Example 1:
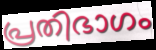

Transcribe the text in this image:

പ്രതിഭാഗം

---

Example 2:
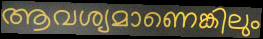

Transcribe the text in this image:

ആവശ്യമാണെങ്കിലും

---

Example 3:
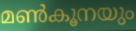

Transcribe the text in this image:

മൺകൂനയും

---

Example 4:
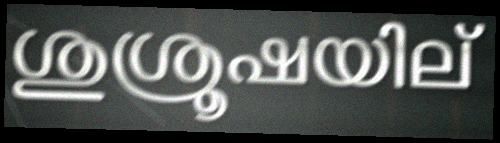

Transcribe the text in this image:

ശുശ്രൂഷയില്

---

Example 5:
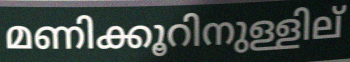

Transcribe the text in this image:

മണിക്കൂറിനുള്ളില്